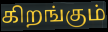
கிறங்கும்